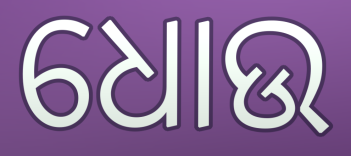
ଧୋଉ